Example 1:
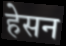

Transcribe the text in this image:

हेसन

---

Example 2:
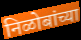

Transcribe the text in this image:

निळोबांच्या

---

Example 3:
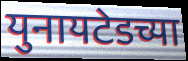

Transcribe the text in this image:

युनायटेडच्या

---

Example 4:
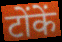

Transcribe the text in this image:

टोंकें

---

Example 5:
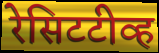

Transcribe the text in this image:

रेसिटटीव्ह